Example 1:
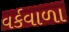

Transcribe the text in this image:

વર્કવાળા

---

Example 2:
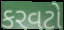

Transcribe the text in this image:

કરવટો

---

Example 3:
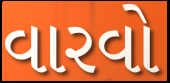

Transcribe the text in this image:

વારવો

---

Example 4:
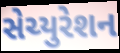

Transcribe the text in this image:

સેચ્યુરેશન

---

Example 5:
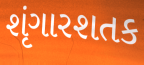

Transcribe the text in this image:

શૃંગારશતક